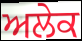
ਅਲੇਕ